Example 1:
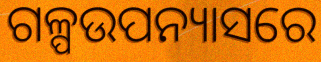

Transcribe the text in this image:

ଗଳ୍ପଉପନ୍ୟାସରେ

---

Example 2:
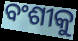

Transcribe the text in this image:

ବଂଶୀକୁ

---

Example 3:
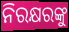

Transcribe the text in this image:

ନିରକ୍ଷରଙ୍କୁ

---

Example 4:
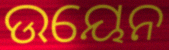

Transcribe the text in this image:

ଉୟେନ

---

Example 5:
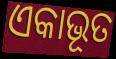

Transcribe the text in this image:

ଏକାଭୂତ